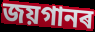
জয়গানৰ